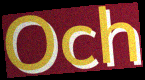
Och